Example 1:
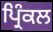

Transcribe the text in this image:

ਪ੍ਰਿੰਕਲ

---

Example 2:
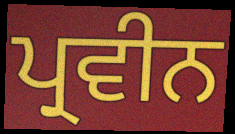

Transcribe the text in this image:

ਪ੍ਰਵੀਨ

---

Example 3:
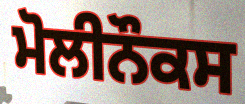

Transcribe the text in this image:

ਮੋਲੀਨੌਕਸ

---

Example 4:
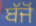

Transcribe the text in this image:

ਬੱਜੋਂ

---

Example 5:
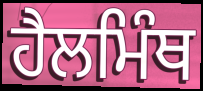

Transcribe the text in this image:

ਹੈਲਮਿੰਥ